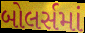
બોલર્સમાં